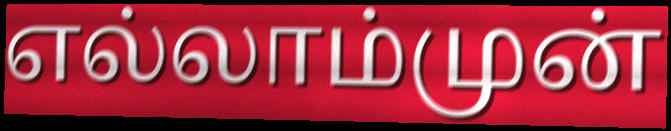
எல்லாம்முன்